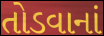
તોડવાનાં